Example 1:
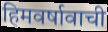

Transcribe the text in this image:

हिमवर्षावाची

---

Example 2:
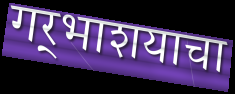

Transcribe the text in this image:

गर्भाशयाचा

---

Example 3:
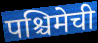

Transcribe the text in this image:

पश्चिमेची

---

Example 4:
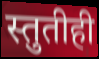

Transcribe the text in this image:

स्तुतीही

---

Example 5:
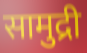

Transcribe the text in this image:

सामुद्री